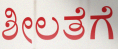
ಶೀಲತೆಗೆ